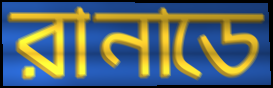
রানাডে